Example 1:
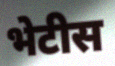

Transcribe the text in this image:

भेटीस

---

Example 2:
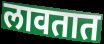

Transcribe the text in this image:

लावतात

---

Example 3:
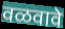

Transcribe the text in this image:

वळवावे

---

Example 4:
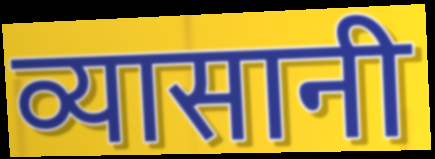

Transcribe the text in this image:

व्यासानी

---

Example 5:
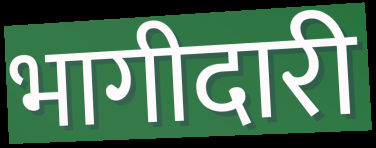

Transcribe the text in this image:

भागीदारी